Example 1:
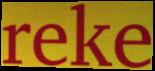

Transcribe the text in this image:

reke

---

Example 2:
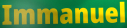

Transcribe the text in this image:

Immanuel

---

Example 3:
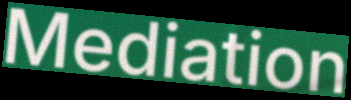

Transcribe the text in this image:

Mediation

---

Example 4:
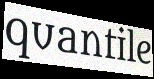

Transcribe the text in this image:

quantile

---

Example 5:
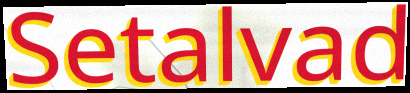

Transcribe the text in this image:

Setalvad